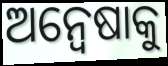
ଅନ୍ୱେଷାକୁ